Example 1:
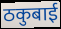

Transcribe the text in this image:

ठकुबाई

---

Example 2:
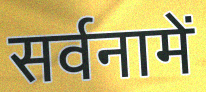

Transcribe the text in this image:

सर्वनामें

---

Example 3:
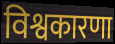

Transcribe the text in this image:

विश्वकारणा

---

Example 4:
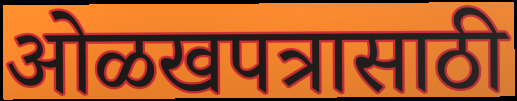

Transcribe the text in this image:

ओळखपत्रासाठी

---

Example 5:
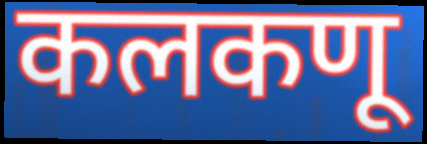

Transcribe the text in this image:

कलकणू